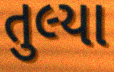
તુલ્યા